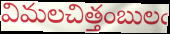
విమలచిత్తంబులఁ